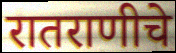
रातराणीचे